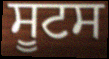
ਸੂਟਸ